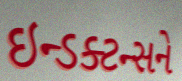
ઇન્ડક્ટન્સને